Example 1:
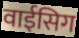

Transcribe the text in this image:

वाईसिग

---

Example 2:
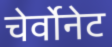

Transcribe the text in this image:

चेर्वोनेट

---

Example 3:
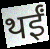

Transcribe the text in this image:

थईं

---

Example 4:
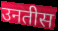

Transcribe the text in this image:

उनतीस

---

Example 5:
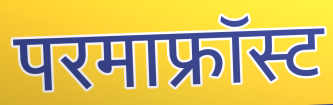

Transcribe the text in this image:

परमाफ्रॉस्ट